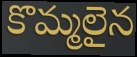
కొమ్మలైన